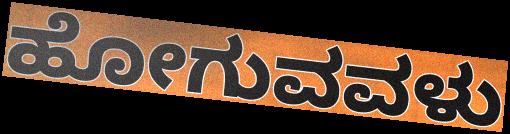
ಹೋಗುವವಳು